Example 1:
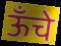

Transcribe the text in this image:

ऊँचे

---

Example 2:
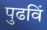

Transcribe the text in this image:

पुढविं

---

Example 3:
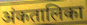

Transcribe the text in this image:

अंकतालिका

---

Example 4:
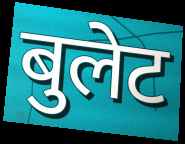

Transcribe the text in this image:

बुलेट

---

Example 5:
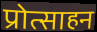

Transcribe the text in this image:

प्रोत्साहन